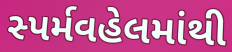
સ્પર્મવહેલમાંથી